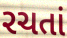
રચતાં